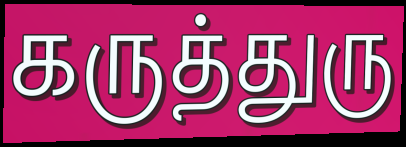
கருத்துரு